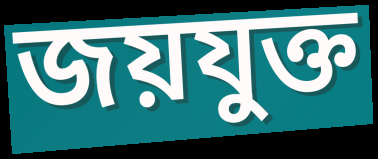
জয়যুক্ত